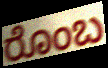
ರೊಂಬ